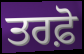
ਤਰਫ਼ੋ